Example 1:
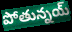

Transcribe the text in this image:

పోతున్నయ్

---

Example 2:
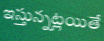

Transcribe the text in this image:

ఇస్తున్నట్లయితే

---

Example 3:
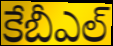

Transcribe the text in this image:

కేబీఎల్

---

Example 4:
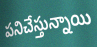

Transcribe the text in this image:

పనిచేస్తున్నాయి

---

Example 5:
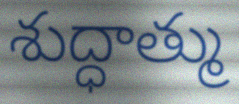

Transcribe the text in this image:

శుద్ధాత్ము